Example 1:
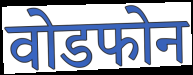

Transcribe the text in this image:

वोडफोन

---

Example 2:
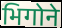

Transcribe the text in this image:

भिगोने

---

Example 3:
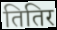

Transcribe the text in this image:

तितिर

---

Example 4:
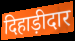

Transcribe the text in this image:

दिहाड़ीदार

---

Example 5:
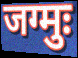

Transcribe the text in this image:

जग्मुः